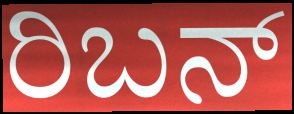
ರಿಬನ್